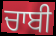
ਚਾਬੀ